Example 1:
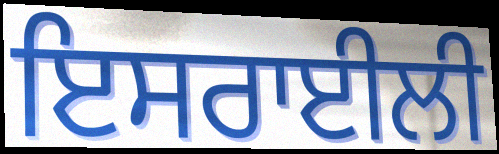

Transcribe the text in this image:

ਇਸਰਾਈਲੀ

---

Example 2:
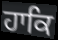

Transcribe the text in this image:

ਹਾਕਿ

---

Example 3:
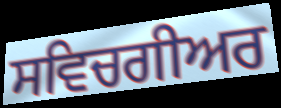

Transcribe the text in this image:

ਸਵਿਚਗੀਅਰ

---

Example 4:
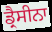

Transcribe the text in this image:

ਡ੍ਰੈਸੀਨਾ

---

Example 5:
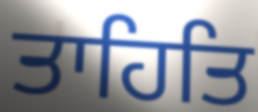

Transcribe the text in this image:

ਤਾਹਿਤਿ